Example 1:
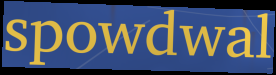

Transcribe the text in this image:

spowdwal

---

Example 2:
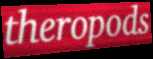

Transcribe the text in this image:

theropods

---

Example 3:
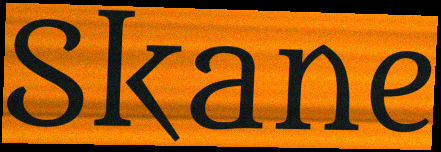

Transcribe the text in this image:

Skane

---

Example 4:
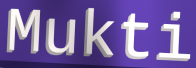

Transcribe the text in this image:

Mukti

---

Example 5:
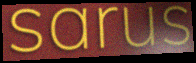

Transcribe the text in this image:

sarus